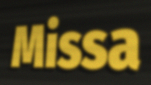
Missa